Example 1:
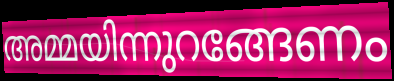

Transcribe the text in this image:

അമ്മയിന്നുറങ്ങേണം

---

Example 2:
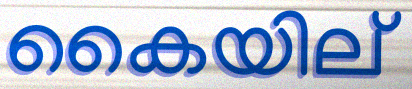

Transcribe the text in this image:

കൈയില്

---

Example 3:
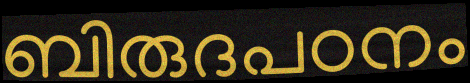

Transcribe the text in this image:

ബിരുദപഠനം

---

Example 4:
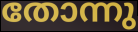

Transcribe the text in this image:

തോന്നു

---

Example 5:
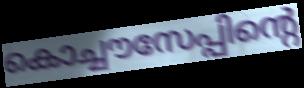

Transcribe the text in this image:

കൊച്ചൗസേപ്പിന്റെ